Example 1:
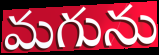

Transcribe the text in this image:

మగును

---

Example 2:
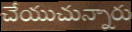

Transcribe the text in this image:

చేయుచున్నారు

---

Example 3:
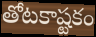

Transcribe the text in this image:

తోటకాష్టకం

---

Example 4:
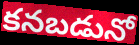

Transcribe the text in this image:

కనబడునో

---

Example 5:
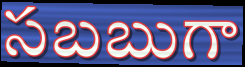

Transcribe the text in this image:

సబబుగా